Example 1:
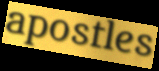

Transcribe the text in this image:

apostles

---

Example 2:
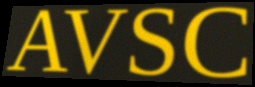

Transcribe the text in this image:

AVSC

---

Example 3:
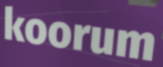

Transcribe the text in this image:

koorum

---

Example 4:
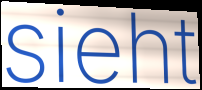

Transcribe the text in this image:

sieht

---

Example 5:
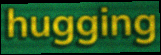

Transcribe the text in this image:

hugging